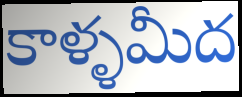
కాళ్ళమీద